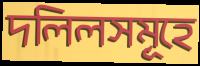
দলিলসমূহে